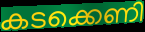
കടക്കെണി